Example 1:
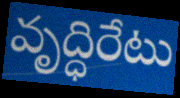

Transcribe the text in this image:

వృద్ధిరేటు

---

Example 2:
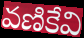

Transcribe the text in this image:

వణికేవి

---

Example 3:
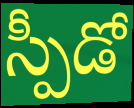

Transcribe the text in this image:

స్పీడో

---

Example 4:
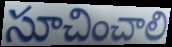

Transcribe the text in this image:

సూచించాలి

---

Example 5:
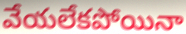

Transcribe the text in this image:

వేయలేకపోయినా